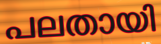
പലതായി